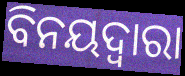
ବିନୟଦ୍ୱାରା